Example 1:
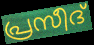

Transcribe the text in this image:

പ്രസീദ്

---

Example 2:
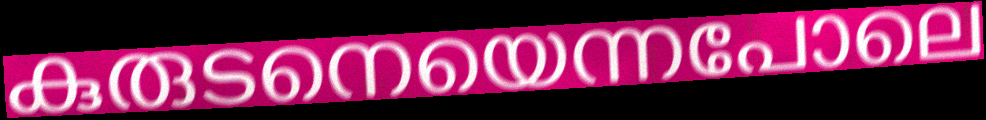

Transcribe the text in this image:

കുരുടനെയെന്നപോലെ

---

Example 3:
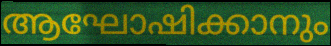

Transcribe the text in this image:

ആഘോഷിക്കാനും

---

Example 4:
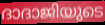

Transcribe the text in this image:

ദാദാജിയുടെ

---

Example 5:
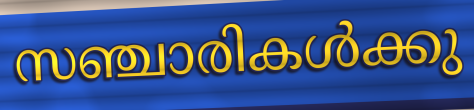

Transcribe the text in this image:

സഞ്ചാരികൾക്കു